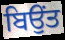
ਬਿਉਂਤ